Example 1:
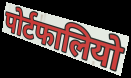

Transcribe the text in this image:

पोर्टफालियो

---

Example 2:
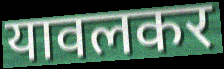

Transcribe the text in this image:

यावलकर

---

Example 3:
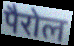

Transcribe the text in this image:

पैरोल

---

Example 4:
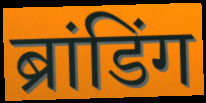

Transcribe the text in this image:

ब्रांडिंग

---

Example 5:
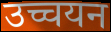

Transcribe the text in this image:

उच्चयन